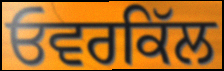
ਓਵਰਕਿੱਲ